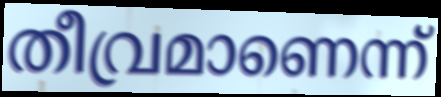
തീവ്രമാണെന്ന്